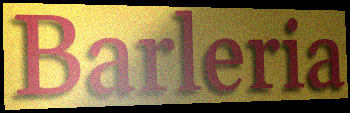
Barleria